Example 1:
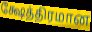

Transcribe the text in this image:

க்ஷேத்திரமான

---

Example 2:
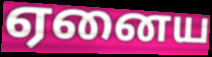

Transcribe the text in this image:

ஏனைய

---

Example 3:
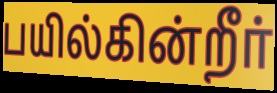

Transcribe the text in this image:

பயில்கின்றீர்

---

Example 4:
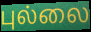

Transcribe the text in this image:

புல்லை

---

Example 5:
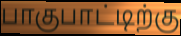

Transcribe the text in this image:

பாகுபாட்டிற்கு